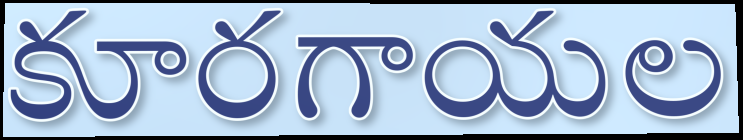
కూరగాయల